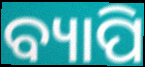
ବ୍ୟାପି